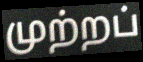
முற்றப்